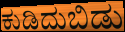
ಕುಡಿದುಬಿಡು